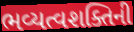
ભવ્યત્વશક્તિની